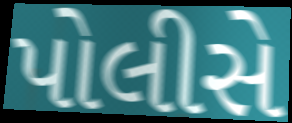
પોલીસે